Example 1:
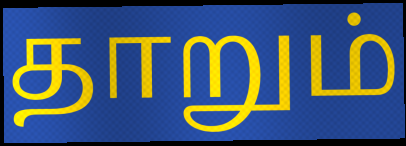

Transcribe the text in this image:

தாறும்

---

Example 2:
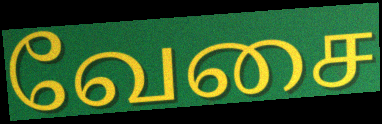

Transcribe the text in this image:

வேசை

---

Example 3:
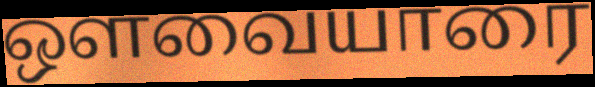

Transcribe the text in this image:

ஔவையாரை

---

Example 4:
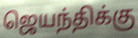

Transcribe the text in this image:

ஜெயந்திக்கு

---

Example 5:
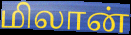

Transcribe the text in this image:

மிலான்